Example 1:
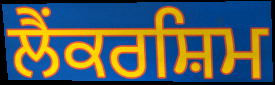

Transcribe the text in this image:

ਲੈਂਕਰਸ਼ਿਮ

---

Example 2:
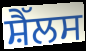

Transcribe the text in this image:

ਸ਼ੈੱਲਸ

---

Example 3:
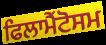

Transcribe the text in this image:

ਫਿਲਾਮੈਂਟੋਸਮ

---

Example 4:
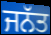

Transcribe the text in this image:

ਜਨੱਤ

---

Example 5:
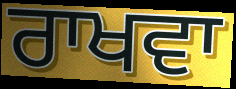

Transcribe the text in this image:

ਰਾਖਵਾ